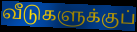
வீடுகளுக்குப்